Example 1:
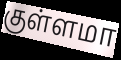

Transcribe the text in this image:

குள்ளமா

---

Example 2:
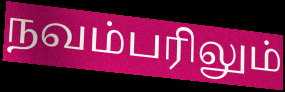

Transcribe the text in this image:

நவம்பரிலும்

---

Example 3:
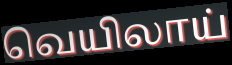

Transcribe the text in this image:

வெயிலாய்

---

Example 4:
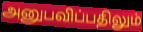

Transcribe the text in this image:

அனுபவிப்பதிலும்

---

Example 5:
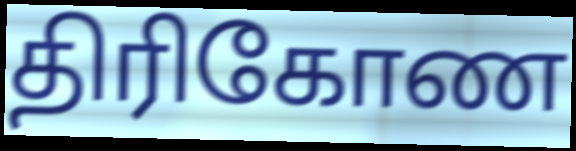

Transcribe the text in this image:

திரிகோண